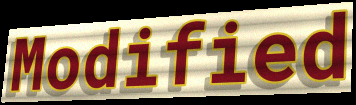
Modified